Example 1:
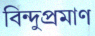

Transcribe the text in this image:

বিন্দুপ্রমাণ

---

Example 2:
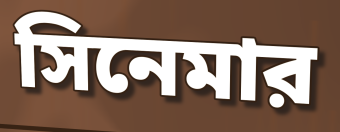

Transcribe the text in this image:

সিনেমার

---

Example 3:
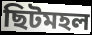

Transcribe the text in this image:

ছিটমহল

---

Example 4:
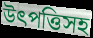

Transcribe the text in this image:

উৎপত্তিসহ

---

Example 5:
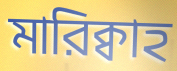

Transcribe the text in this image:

মারিক্বাহ